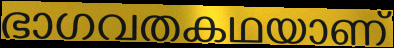
ഭാഗവതകഥയാണ്